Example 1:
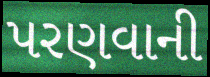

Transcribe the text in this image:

પરણવાની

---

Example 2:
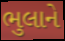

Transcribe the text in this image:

ભુલાને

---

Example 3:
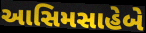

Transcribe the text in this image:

આસિમસાહેબે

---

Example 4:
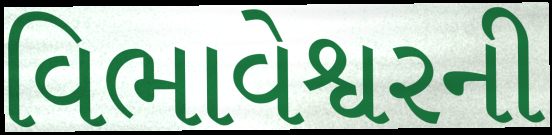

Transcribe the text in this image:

વિભાવેશ્વરની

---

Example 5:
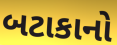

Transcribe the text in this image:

બટાકાનો